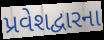
પ્રવેશદ્વારના